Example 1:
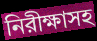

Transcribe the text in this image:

নিরীক্ষাসহ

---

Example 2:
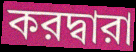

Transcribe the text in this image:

করদ্বারা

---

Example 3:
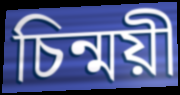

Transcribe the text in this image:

চিন্ময়ী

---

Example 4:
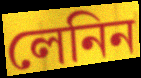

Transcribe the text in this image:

লেনিন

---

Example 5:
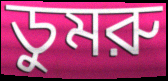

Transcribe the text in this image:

ডুমরু